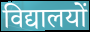
विद्यालयों